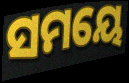
ସମୟେ